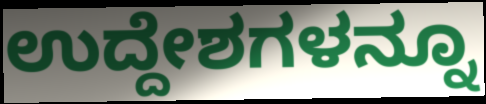
ಉದ್ದೇಶಗಳನ್ನೂ